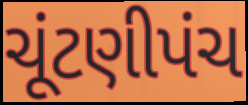
ચૂંટણીપંચ